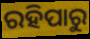
ରହିପାରୁ